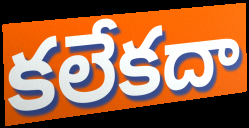
కలేకదా